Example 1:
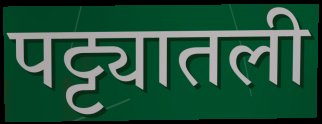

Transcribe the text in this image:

पट्ट्यातली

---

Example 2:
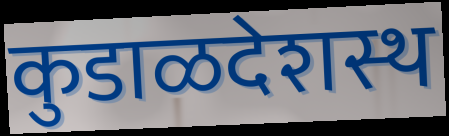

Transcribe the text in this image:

कुडाळदेशस्थ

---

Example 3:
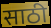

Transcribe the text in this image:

साठी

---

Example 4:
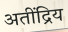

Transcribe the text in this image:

अतींद्रिय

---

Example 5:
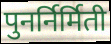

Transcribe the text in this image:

पुनर्निर्मिती